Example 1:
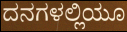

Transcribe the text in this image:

ದನಗಳಲ್ಲಿಯೂ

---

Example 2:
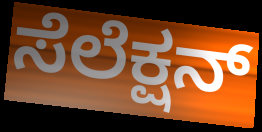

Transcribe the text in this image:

ಸೆಲೆಕ್ಷನ್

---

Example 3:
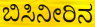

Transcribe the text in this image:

ಬಿಸಿನೀರಿನ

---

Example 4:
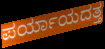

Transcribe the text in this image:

ಪರ್ಯಾಯದತ್ತ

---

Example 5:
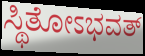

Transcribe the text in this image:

ಸ್ಥಿತೋಽಭವತ್